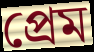
প্রেম